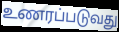
உணரப்படுவது